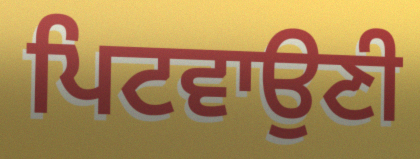
ਪਿਟਵਾਉਣੀ